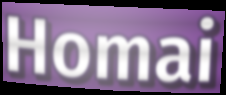
Homai